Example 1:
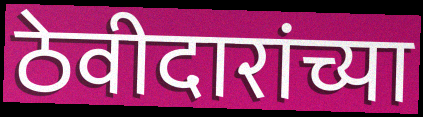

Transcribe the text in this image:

ठेवीदारांच्या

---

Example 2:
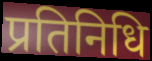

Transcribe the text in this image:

प्रतिनिधि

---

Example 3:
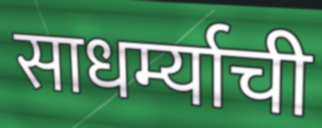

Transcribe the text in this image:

साधर्म्याची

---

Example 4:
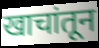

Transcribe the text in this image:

खाचांतून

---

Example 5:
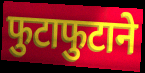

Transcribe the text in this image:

फुटाफुटाने